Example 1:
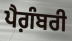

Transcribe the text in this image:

ਪੈਗ਼ੰਬਰੀ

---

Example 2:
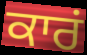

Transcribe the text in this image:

ਕਾਰਂ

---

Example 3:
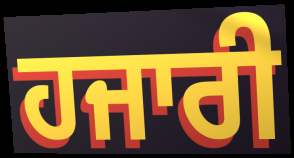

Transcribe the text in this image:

ਹਜਾਰੀ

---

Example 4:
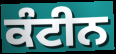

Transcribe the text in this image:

ਕੰਟੀਨ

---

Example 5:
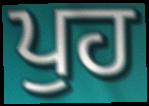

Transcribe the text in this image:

ਪੁਹ